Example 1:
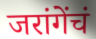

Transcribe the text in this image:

जरांगेंचं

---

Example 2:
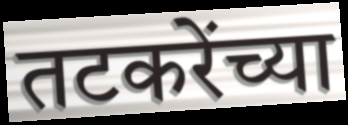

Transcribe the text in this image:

तटकरेंच्या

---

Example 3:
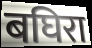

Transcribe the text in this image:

बघिरा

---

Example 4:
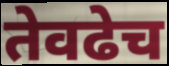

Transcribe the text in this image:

तेवढेच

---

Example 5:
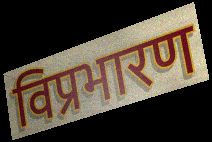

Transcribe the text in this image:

विप्रभारण